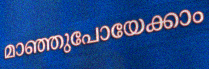
മാഞ്ഞുപോയേക്കാം